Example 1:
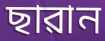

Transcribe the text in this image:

ছাৱান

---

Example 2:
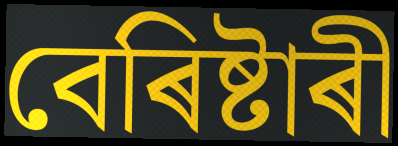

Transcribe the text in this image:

বেৰিষ্টাৰী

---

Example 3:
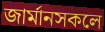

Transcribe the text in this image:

জাৰ্মানসকলে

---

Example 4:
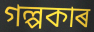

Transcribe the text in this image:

গল্পকাৰ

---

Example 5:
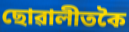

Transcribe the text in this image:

ছোৱালীতকৈ